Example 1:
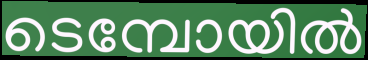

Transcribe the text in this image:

ടെമ്പോയിൽ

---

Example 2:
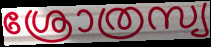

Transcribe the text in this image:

ശ്രോത്രസ്യ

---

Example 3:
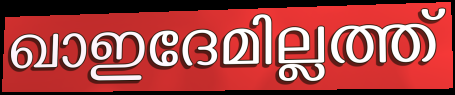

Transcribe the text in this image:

ഖാഇദേമില്ലത്ത്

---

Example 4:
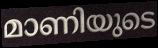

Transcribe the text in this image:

മാണിയുടെ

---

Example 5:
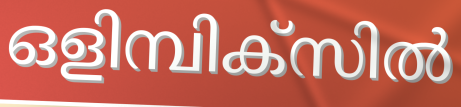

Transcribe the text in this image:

ഒളിമ്പിക്സിൽ